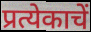
प्रत्येकाचें